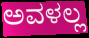
ಅವಳಲ್ಲ